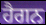
ਹੈਗਨ